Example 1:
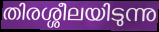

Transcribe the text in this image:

തിരശ്ശീലയിടുന്നു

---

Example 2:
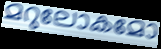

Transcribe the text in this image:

മറുലോകമോ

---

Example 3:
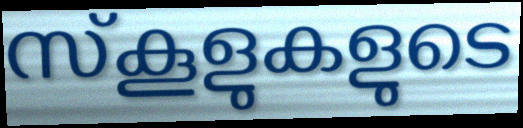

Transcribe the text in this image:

സ്‌കൂളുകളുടെ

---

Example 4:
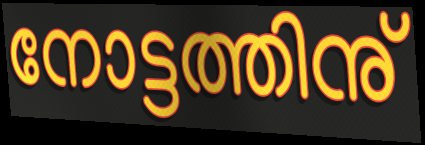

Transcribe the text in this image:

നോട്ടത്തിനു്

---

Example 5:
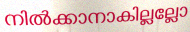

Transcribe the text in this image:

നിൽക്കാനാകില്ലല്ലോ